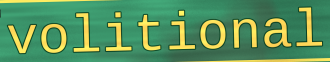
volitional